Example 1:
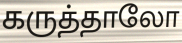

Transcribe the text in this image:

கருத்தாலோ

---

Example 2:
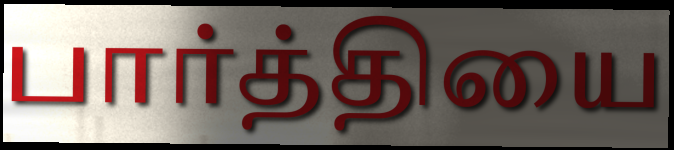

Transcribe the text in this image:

பார்த்தியை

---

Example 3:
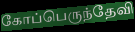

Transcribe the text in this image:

கோப்பெருந்தேவி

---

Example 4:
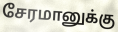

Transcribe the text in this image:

சேரமானுக்கு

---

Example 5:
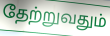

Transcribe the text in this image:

தேற்றுவதும்